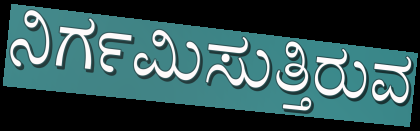
ನಿರ್ಗಮಿಸುತ್ತಿರುವ